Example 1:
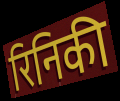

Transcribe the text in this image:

रिनिकी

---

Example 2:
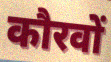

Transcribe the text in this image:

कौरवों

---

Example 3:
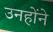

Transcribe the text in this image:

उनहोंने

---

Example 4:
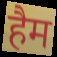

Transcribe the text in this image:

हैम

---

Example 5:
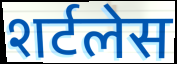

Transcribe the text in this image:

शर्टलेस